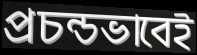
প্রচন্ডভাবেই